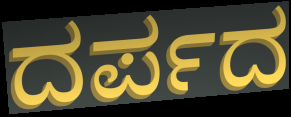
ದರ್ಪದ